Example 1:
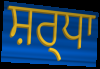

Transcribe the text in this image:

ਸ਼ਰ੍ਧਾ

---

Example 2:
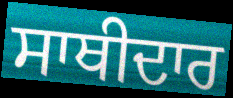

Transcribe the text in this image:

ਸਾਥੀਦਾਰ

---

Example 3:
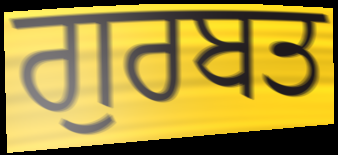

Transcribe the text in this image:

ਗੁਰਬਤ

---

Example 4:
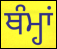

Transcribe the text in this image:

ਥੰਮ੍ਹਾਂ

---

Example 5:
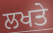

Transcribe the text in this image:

ਲਖਤੇ